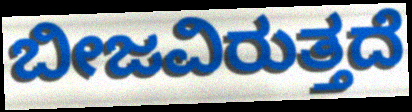
ಬೀಜವಿರುತ್ತದೆ